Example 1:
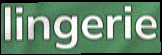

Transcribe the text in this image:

lingerie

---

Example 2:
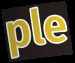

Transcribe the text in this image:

ple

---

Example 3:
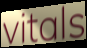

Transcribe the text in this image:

vitals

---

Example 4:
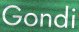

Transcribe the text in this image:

Gondi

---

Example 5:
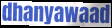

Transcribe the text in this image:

dhanyawaad